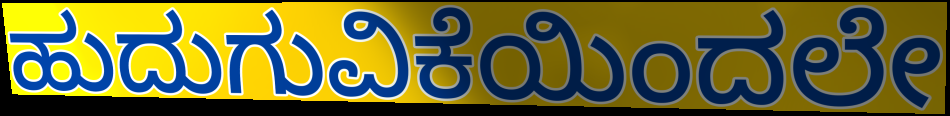
ಹುದುಗುವಿಕೆಯಿಂದಲೇ